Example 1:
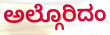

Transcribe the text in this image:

ಅಲ್ಗೊರಿದಂ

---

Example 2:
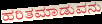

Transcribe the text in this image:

ಹರಿತಮಾಡುವನು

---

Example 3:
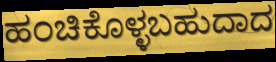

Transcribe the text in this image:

ಹಂಚಿಕೊಳ್ಳಬಹುದಾದ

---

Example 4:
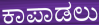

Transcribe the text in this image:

ಕಾಪಾಡಲು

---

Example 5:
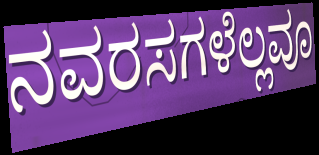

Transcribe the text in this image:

ನವರಸಗಳೆಲ್ಲವೂ